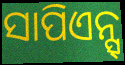
ସାପିଏନ୍ସ୍